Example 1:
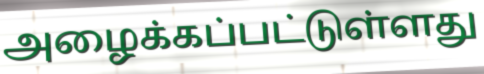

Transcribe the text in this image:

அழைக்கப்பட்டுள்ளது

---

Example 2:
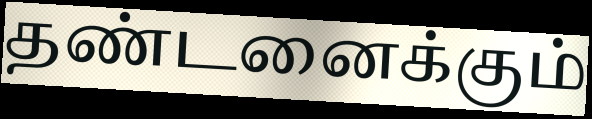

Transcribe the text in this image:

தண்டனைக்கும்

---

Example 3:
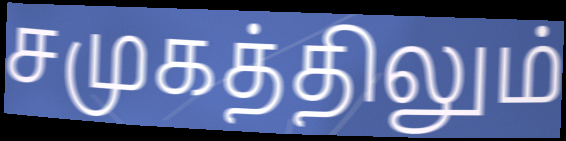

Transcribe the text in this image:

சமுகத்திலும்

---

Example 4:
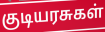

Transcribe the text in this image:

குடியரசுகள்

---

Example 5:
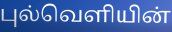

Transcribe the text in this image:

புல்வெளியின்